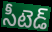
సీటెడ్